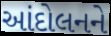
આંદોલનને